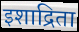
इशाद्रिता